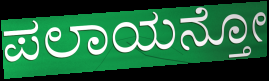
ಪಲಾಯನ್ತೋ